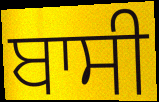
ਬਾਸੀ